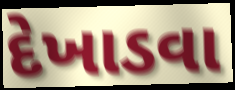
દેખાડવા